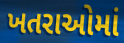
ખતરાઓમાં